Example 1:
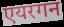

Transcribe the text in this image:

एयरगन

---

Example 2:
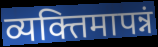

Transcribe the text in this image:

व्यक्तिमापन्नं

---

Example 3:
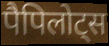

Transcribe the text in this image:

पैपिलोट्स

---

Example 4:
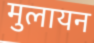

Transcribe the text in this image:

मुलायन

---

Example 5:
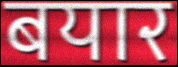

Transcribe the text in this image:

बयार